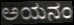
ಅಯನಂ